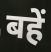
बहें